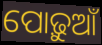
ପୋଢ଼ୁଆଁ